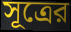
সূত্রের